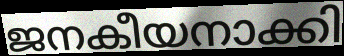
ജനകീയനാക്കി